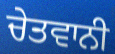
ਚੇਤਵਾਨੀ